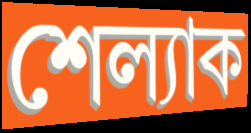
শেল্যাক